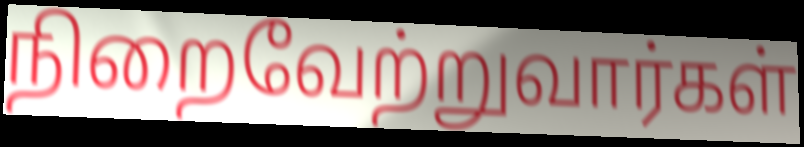
நிறைவேற்றுவார்கள்